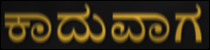
ಕಾದುವಾಗ